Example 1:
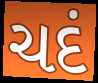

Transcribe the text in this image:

ચદં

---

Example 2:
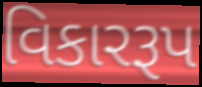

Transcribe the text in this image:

વિકારરૂપ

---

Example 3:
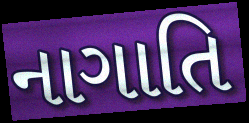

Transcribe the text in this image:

નાગાતિ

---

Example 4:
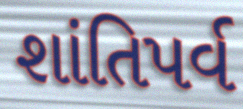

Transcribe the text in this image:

શાંતિપર્વ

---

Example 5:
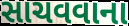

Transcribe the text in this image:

સાચવવાના